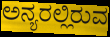
ಅನ್ಯರಲ್ಲಿರುವ